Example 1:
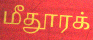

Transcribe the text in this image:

மீதூரக்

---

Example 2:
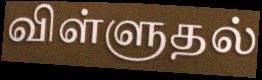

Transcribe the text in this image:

விள்ளுதல்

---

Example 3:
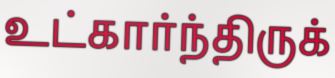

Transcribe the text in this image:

உட்கார்ந்திருக்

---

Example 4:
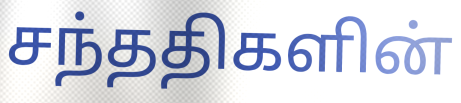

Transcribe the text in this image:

சந்ததிகளின்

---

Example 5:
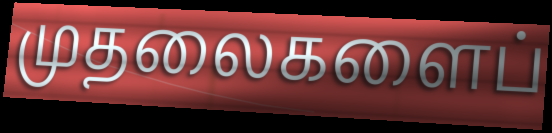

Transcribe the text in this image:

முதலைகளைப்